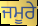
ਜਮੂਰੇ